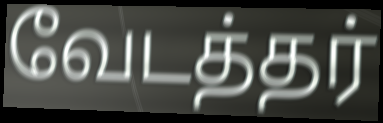
வேடத்தர்